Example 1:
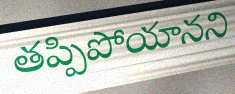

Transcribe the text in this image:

తప్పిపోయానని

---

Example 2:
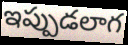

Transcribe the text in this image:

ఇప్పుడలాగ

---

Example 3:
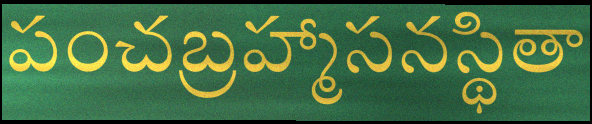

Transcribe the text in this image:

పంచబ్రహ్మాసనస్థితా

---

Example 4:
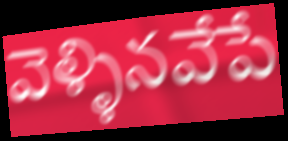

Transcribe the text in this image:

వెళ్ళినవేపే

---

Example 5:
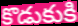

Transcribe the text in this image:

కొడుకుకి